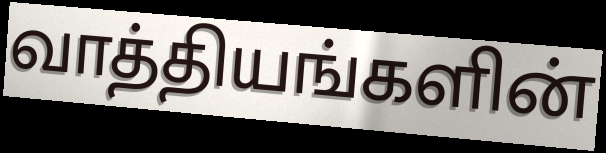
வாத்தியங்களின்